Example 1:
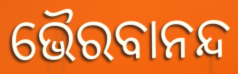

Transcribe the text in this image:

ଭୈରବାନନ୍ଦ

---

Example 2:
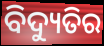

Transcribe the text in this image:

ବିଦ୍ୟୁତିର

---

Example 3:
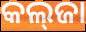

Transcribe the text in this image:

କଲ୍‌ଜା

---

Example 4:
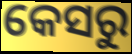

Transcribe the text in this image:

କେସରୁ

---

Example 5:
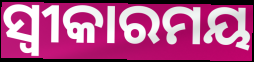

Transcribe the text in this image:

ସ୍ଵୀକାରମୟ